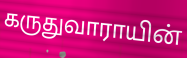
கருதுவாராயின்